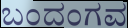
ಬಂದಂಗವ